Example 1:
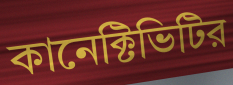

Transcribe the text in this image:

কানেক্টিভিটির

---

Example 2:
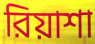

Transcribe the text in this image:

রিয়াশা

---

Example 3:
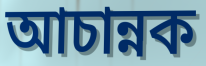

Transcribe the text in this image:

আচান্নক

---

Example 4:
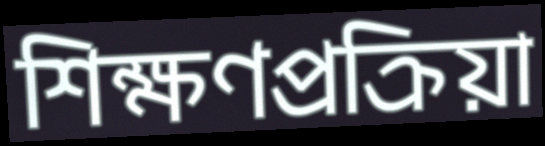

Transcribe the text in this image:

শিক্ষণপ্রক্রিয়া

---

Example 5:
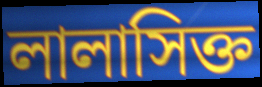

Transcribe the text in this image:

লালাসিক্ত